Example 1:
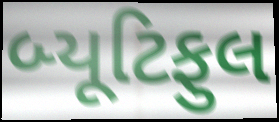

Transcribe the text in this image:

બ્યૂટિફુલ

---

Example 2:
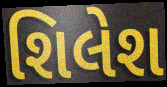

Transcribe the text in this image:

શિલેશ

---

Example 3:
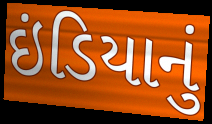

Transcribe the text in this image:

ઇંડિયાનું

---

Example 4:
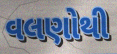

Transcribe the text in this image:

વલણોથી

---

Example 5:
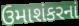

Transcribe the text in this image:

ઉમાશંકરનાં